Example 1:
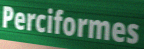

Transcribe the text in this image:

Perciformes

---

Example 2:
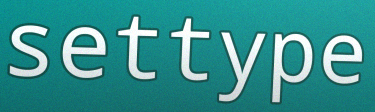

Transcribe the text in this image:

settype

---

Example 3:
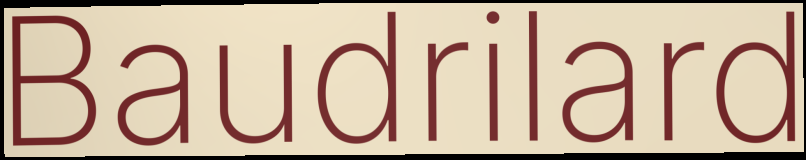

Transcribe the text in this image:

Baudrilard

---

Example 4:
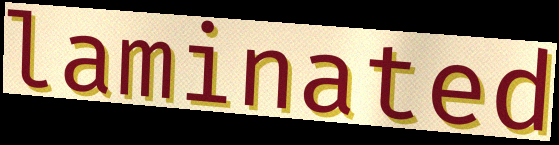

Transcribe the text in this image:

laminated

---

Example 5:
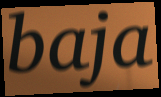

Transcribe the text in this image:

baja